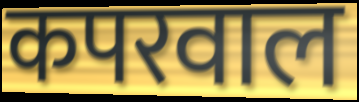
कपरवाल